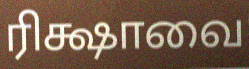
ரிக்ஷாவை